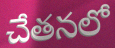
చేతనలో